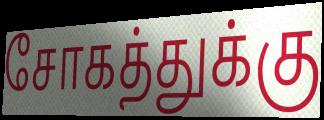
சோகத்துக்கு